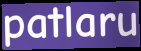
patlaru